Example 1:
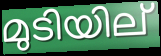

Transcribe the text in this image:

മുടിയില്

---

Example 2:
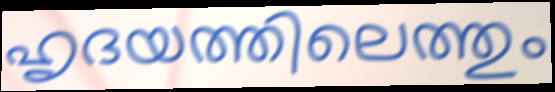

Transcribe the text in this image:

ഹൃദയത്തിലെത്തും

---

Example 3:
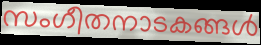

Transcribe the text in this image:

സംഗീതനാടകങ്ങൾ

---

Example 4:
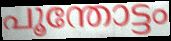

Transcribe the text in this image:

പൂന്തോട്ടം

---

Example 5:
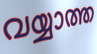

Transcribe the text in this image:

വയ്യാത്ത